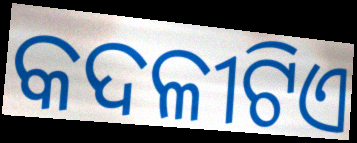
କଦଳୀଟିଏ